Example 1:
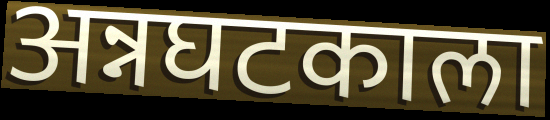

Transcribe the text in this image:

अन्नघटकाला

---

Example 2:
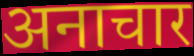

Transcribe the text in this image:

अनाचार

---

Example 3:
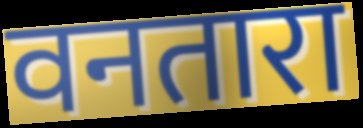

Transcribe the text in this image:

वनतारा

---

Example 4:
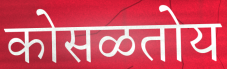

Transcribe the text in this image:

कोसळतोय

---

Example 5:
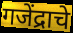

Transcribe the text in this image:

गजेंद्राचे